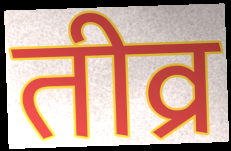
तीव्र